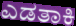
ಎಡತಾಕಿ